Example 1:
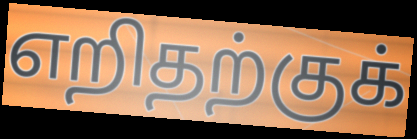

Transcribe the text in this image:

எறிதற்குக்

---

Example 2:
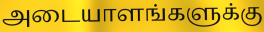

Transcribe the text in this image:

அடையாளங்களுக்கு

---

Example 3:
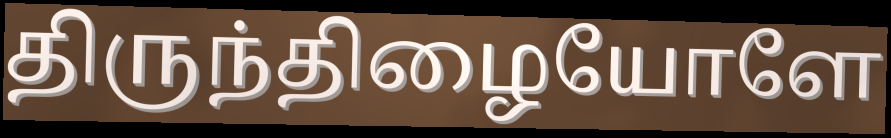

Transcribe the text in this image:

திருந்திழையோளே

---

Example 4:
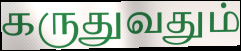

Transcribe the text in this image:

கருதுவதும்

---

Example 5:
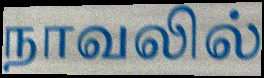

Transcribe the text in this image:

நாவலில்